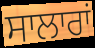
ਸਾਲਾਰਾਂ